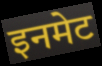
इनमेट